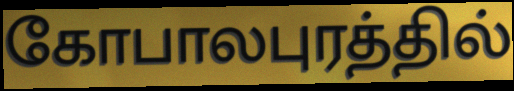
கோபாலபுரத்தில்